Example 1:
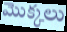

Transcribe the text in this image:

మొక్కలు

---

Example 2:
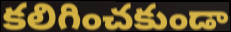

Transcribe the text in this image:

కలిగించకుండా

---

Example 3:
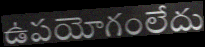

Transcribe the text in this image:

ఉపయోగంలేదు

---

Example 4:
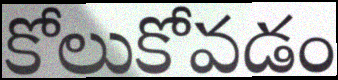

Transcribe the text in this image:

కోలుకోవడం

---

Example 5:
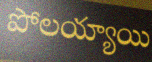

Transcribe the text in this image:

పోలయ్యాయి